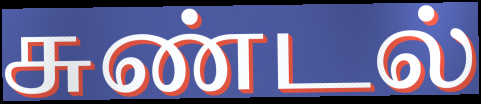
சுண்டல்